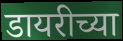
डायरीच्या